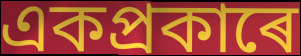
একপ্ৰকাৰে